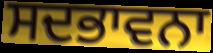
ਸਦਭਾਵਨਾ